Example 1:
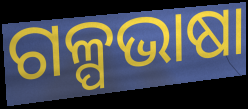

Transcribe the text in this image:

ଗଳ୍ପଭାଷା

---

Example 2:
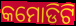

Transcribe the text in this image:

କମୋଡିଟି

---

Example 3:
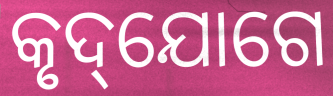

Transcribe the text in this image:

କୃଦ୍‌ଯୋଗେ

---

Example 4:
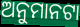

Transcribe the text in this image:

ଅନୁମାନଟା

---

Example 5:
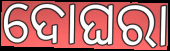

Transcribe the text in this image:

ଦୋଘରା